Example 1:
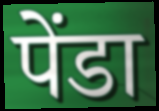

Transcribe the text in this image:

पेंडा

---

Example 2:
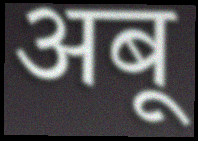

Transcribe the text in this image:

अबू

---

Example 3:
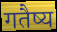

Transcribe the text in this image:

गतैष्य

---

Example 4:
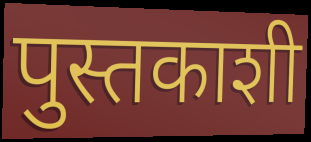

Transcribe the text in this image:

पुस्तकाशी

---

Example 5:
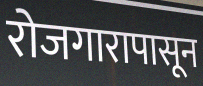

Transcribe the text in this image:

रोजगारापासून